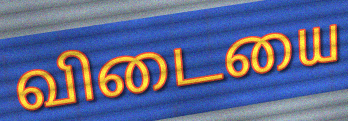
விடையை